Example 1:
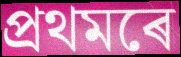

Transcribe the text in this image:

প্ৰথমৰে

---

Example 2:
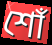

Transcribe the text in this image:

শোঁ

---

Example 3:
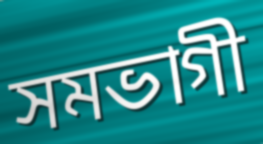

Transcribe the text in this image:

সমভাগী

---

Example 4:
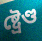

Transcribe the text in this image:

ষ্ট্ৰেণ্ড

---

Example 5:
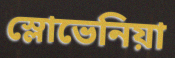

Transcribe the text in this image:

স্লোভেনিয়া